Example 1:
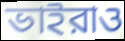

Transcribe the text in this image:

ভাইরাও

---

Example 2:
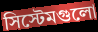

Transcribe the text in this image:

সিস্টেমগুলো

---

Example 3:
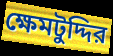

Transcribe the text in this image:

ক্ষেমটুদ্দির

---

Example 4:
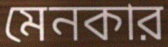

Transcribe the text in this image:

মেনকার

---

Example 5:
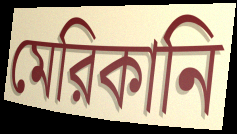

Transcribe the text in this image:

মেরিকানি